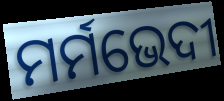
ମର୍ମଭେଦୀ